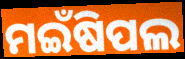
ମଇଁଷିପଲ